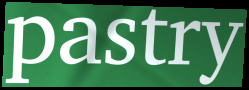
pastry